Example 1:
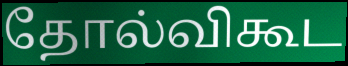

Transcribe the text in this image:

தோல்விகூட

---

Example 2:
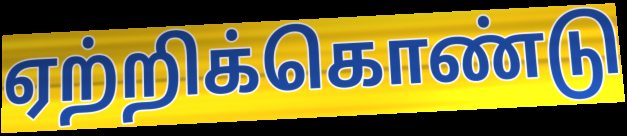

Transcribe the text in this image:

ஏற்றிக்கொண்டு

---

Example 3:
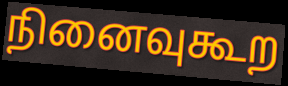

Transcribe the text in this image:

நினைவுகூற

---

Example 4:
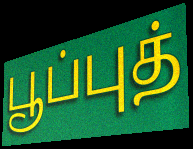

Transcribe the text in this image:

பூப்புத்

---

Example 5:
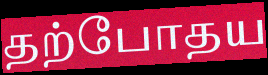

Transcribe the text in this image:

தற்போதய